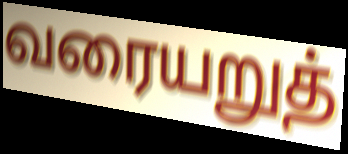
வரையறுத்